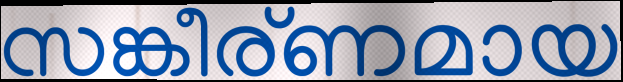
സങ്കീര്ണമായ